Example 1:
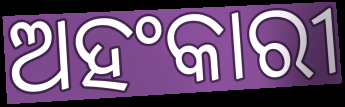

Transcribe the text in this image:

ଅହଂକାରୀ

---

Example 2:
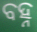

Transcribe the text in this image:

ବହ୍ନ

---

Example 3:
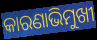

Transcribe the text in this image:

କାରଣାଭିମୁଖୀ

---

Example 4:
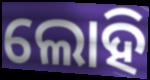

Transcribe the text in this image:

ଲୋହି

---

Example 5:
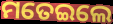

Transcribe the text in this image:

ମତେଇଲେ